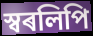
স্বৰলিপি